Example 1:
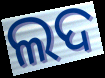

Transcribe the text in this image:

ଲଦ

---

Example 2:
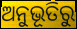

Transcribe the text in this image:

ଅନୁଭୂତିରୁ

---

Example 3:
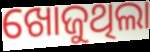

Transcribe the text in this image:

ଖୋଜୁଥିଲା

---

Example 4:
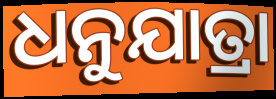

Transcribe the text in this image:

ଧନୁଯାତ୍ରା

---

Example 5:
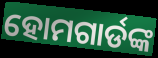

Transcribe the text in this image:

ହୋମଗାର୍ଡଙ୍କ